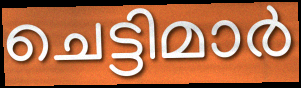
ചെട്ടിമാർ